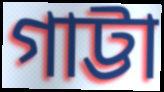
গাট্টা